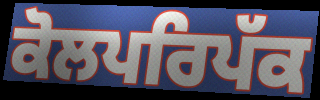
ਕੋਲਪਰਿਪੱਕ